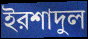
ইরশাদুল